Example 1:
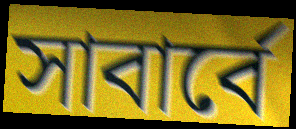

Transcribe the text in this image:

সাবার্বে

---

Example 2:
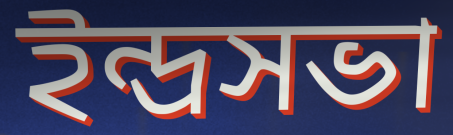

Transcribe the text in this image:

ইন্দ্রসভা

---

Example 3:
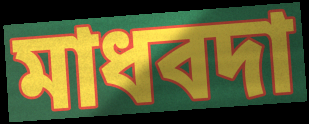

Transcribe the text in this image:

মাধবদা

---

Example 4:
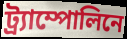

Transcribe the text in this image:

ট্র্যাম্পোলিনে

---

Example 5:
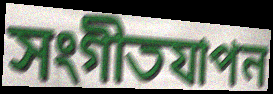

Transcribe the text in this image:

সংগীতযাপন